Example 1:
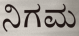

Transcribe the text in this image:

ನಿಗಮ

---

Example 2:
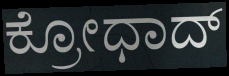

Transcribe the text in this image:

ಕ್ರೋಧಾದ್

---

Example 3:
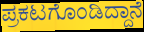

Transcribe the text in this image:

ಪ್ರಕಟಗೊಂಡಿದ್ದಾನೆ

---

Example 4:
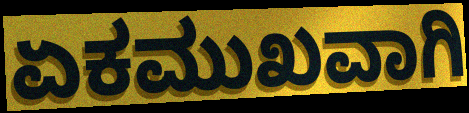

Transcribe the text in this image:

ಏಕಮುಖವಾಗಿ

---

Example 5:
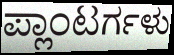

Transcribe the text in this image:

ಪ್ಲಾಂಟರ್ಗಳು